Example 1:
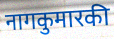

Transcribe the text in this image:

नागकुमारकी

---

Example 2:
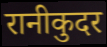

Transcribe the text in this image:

रानीकुदर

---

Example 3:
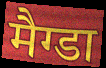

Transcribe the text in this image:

मैग्डा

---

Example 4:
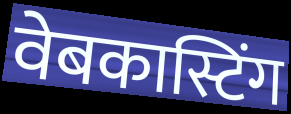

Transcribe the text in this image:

वेबकास्टिंग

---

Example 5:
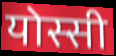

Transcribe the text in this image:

योस्सी